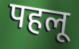
पहलू